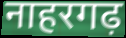
नाहरगढ़